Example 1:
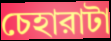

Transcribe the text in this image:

চেহারাটা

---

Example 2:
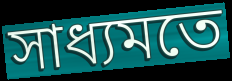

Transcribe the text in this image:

সাধ্যমতে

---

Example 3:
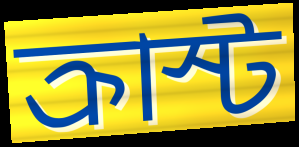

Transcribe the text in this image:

ক্রাস্ট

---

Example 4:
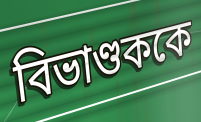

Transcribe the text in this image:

বিভাণ্ডককে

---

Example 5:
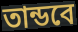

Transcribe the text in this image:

তান্ডবে